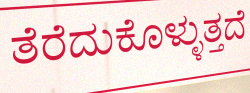
ತೆರೆದುಕೊಳ್ಳುತ್ತದೆ